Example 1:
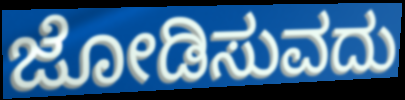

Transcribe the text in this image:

ಜೋಡಿಸುವದು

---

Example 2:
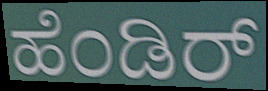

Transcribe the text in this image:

ಹೆಂಡಿರ್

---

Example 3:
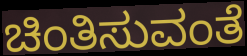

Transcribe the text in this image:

ಚಿಂತಿಸುವಂತೆ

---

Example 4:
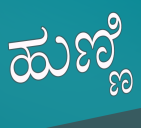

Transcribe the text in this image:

ಹುಣ್ಣಿ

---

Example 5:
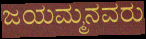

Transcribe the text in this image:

ಜಯಮ್ಮನವರು